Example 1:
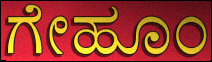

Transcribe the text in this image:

ಗೇಹೂಂ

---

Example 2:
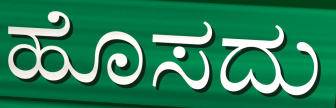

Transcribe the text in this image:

ಹೊಸದು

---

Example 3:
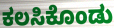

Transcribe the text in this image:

ಕಲಸಿಕೊಂಡು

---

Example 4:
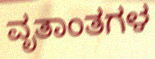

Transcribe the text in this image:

ವೃತಾಂತಗಳ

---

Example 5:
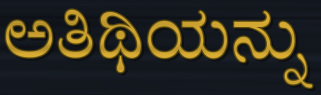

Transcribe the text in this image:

ಅತಿಥಿಯನ್ನು